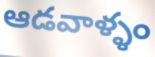
ఆడవాళ్ళం